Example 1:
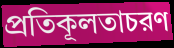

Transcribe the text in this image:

প্রতিকূলতাচরণ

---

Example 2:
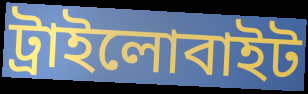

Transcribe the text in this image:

ট্রাইলোবাইট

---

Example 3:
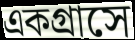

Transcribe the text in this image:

একগ্রাসে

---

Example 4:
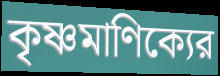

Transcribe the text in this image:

কৃষ্ণমাণিক্যের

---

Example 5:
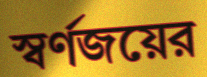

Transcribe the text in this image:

স্বর্ণজয়ের